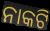
ନାକଟି